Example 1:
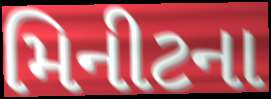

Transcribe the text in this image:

મિનીટના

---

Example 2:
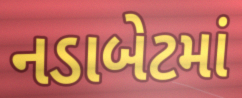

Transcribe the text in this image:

નડાબેટમાં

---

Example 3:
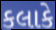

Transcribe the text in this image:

કલાકે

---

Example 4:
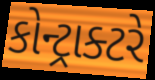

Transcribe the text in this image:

કોન્ટ્રાક્ટરે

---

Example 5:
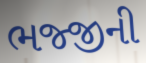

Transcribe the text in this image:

ભજ્જીની